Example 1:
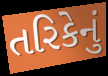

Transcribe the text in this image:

તરિકેનું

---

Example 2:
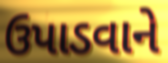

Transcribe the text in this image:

ઉપાડવાને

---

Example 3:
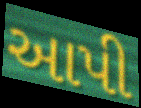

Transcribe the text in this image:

આપી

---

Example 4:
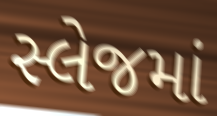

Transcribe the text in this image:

સ્લેજમાં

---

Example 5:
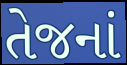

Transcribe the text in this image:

તેજનાં